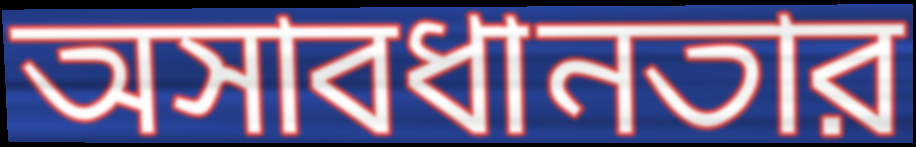
অসাবধানতার